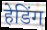
हेडिंग